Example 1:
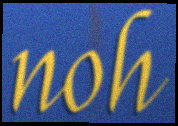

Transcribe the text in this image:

noh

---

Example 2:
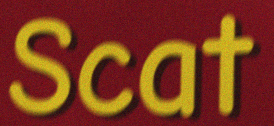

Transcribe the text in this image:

Scat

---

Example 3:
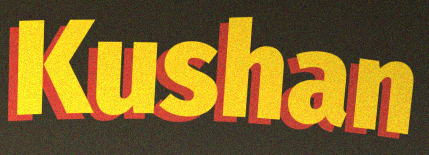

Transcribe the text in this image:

Kushan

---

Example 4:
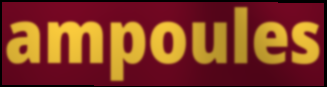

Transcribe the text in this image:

ampoules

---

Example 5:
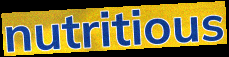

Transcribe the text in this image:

nutritious